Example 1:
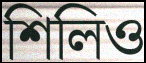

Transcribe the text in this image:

শিলিও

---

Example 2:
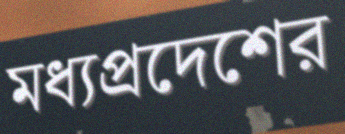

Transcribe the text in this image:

মধ্যপ্রদেশের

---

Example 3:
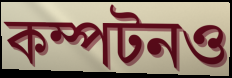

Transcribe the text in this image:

কম্পটনও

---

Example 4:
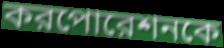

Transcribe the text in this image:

করপোরেশনকে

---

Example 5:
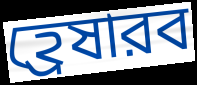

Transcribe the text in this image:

হ্রেষারব